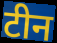
टीन